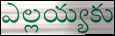
ఎల్లయ్యకు